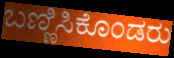
ಬಣ್ಣಿಸಿಕೊಂಡರು